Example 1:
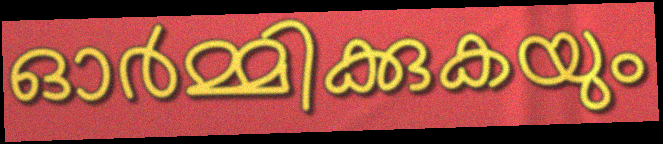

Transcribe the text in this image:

ഓർമ്മിക്കുകയും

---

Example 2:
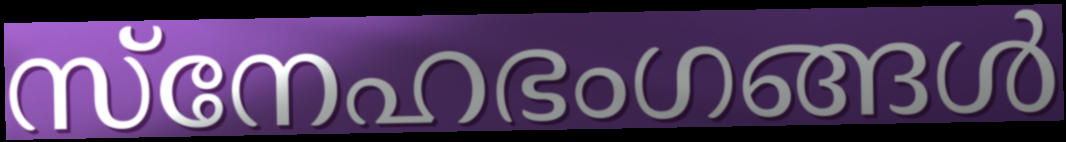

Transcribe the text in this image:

സ്നേഹഭംഗങ്ങൾ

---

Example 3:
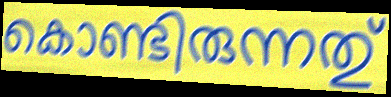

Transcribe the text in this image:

കൊണ്ടിരുന്നതു്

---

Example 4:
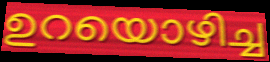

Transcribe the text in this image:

ഉറയൊഴിച്ച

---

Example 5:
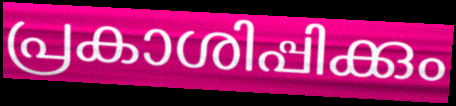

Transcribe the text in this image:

പ്രകാശിപ്പിക്കും